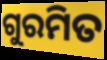
ଗୁରମିତ